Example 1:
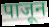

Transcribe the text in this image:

पाजून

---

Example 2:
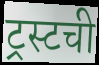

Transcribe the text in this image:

ट्रस्टची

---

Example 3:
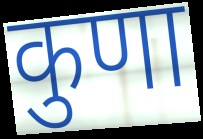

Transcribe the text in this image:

कुणा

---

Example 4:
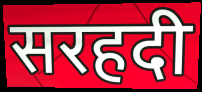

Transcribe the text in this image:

सरहदी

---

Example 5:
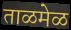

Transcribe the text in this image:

ताळमेळ